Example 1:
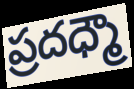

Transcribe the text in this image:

ప్రదధ్మౌ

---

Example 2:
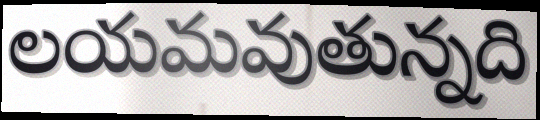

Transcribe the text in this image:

లయమవుతున్నది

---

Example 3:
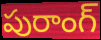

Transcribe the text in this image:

పురాంగ్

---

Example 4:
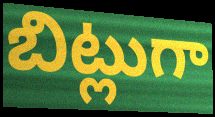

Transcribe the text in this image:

బిట్లుగా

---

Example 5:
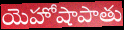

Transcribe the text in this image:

యెహోషాపాతు